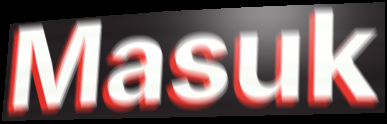
Masuk